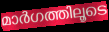
മാർഗത്തിലൂടെ